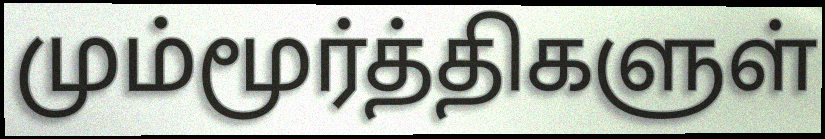
மும்மூர்த்திகளுள்